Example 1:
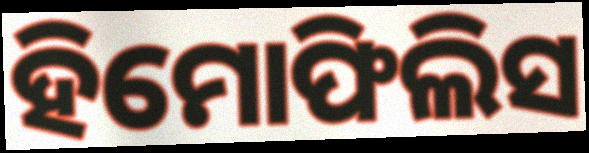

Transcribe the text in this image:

ହିମୋଫିଲିସ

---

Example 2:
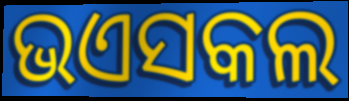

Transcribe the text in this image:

ଭଏସକଲ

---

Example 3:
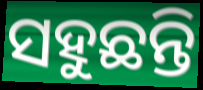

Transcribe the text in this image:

ସହୁଛନ୍ତି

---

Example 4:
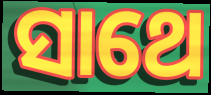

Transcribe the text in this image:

ସାଥେ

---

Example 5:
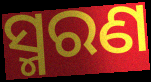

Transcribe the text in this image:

ସ୍ମରଣ